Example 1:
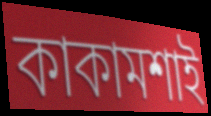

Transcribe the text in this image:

কাকামশাই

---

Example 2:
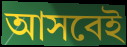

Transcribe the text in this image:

আসবেই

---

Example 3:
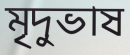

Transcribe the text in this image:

মৃদুভাষ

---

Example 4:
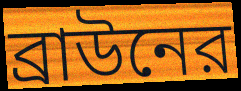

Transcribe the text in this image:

ব্রাউনের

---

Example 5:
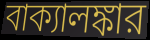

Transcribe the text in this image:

বাক্যালঙ্কার